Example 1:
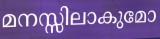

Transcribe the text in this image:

മനസ്സിലാകുമോ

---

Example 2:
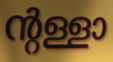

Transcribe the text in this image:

ന്റള്ളാ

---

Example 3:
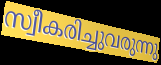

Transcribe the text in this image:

സ്വീകരിച്ചുവരുന്നു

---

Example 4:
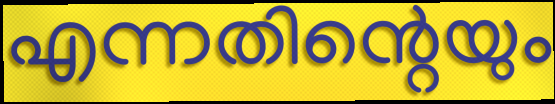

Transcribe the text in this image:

എന്നതിന്റെയും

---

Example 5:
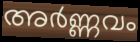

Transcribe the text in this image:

അർണ്ണവം